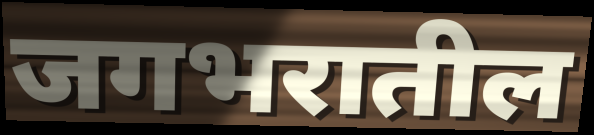
जगभरातील